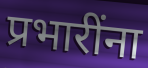
प्रभारींना